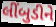
લીંબુડીને